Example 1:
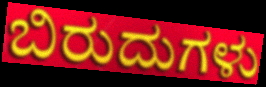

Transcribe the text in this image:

ಬಿರುದುಗಳು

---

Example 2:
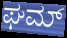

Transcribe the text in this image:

ಘಮ್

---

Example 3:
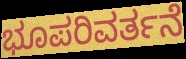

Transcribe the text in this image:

ಭೂಪರಿವರ್ತನೆ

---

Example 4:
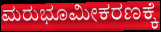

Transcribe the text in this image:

ಮರುಭೂಮೀಕರಣಕ್ಕೆ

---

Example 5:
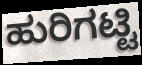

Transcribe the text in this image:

ಹುರಿಗಟ್ಟಿ